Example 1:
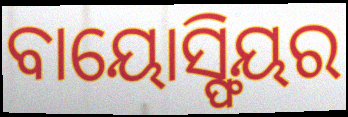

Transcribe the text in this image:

ବାୟୋସ୍ଫିୟର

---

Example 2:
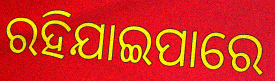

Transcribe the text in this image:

ରହିଯାଇପାରେ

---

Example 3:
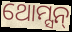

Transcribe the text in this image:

ଥୋମ୍ସନ୍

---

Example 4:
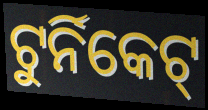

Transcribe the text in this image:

ଟୁର୍ନିକେଟ୍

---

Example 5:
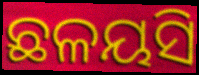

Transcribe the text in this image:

ଛଳୟସି